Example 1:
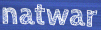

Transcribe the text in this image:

natwar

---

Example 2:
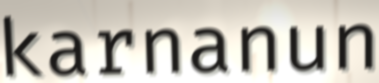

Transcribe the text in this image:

karnanun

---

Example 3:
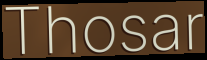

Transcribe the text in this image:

Thosar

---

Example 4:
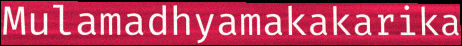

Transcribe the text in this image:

Mulamadhyamakakarika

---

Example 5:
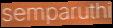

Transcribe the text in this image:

semparuthi